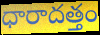
ధారాదత్తం